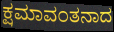
ಕ್ಷಮಾವಂತನಾದ